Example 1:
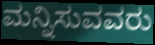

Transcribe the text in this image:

ಮನ್ನಿಸುವವರು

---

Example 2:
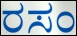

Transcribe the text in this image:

ರಸಂ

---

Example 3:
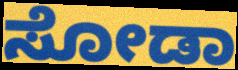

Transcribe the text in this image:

ಸೋಡಾ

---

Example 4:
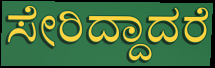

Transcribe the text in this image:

ಸೇರಿದ್ದಾದರೆ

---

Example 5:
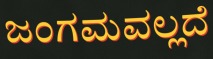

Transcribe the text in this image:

ಜಂಗಮವಲ್ಲದೆ